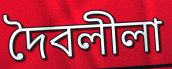
দৈবলীলা